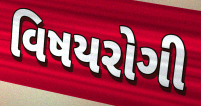
વિષયરોગી